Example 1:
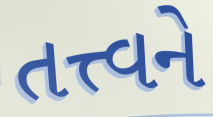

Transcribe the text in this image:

તત્ત્વને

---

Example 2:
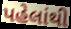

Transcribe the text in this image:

પહેલાંથી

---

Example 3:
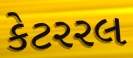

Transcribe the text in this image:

કેટરરલ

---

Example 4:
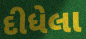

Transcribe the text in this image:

દીધેલા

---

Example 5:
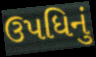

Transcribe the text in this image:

ઉપધિનું